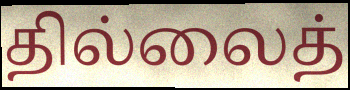
தில்லைத்